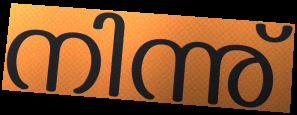
നിന്നു്